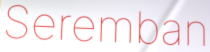
Seremban